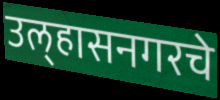
उल्हासनगरचे